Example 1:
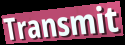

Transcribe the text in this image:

Transmit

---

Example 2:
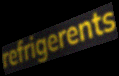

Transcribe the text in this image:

refrigerents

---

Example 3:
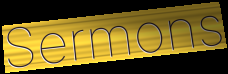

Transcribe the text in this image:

Sermons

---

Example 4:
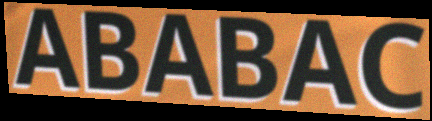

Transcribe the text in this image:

ABABAC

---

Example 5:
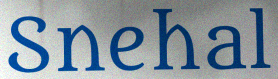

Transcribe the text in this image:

Snehal